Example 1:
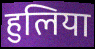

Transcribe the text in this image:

हुलिया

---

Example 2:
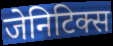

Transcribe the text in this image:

जेनिटिक्स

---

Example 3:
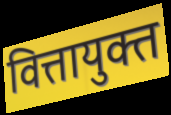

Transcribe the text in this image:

वित्तायुक्त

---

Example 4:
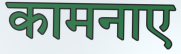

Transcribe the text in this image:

कामनाए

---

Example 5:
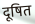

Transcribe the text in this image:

दूषित